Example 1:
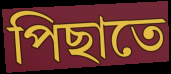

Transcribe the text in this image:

পিছাতে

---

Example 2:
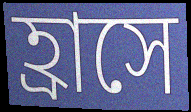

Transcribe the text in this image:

হ্রাসে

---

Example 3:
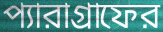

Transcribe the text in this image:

প্যারাগ্রাফের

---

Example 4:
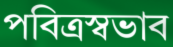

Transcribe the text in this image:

পবিত্রস্বভাব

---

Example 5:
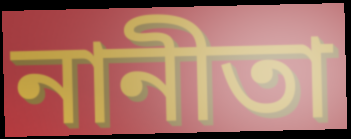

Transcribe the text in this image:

নানীতা